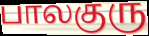
பாலகுரு